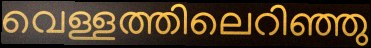
വെള്ളത്തിലെറിഞ്ഞു